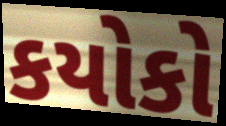
કયોકો